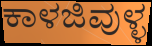
ಕಾಳಜಿವುಳ್ಳ